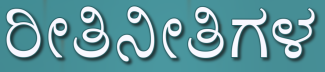
ರೀತಿನೀತಿಗಳ